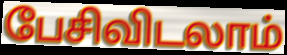
பேசிவிடலாம்